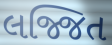
લજ્જિત